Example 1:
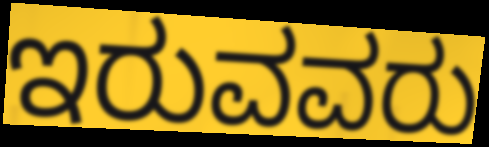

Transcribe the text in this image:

ಇರುವವರು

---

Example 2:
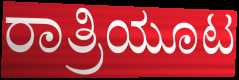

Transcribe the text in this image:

ರಾತ್ರಿಯೂಟ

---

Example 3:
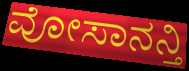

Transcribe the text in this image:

ವೋಸಾನನ್ತಿ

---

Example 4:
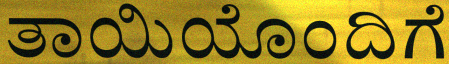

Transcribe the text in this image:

ತಾಯಿಯೊಂದಿಗೆ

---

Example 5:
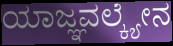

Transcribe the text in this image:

ಯಾಜ್ಞವಲ್ಕ್ಯೇನ